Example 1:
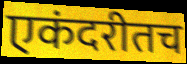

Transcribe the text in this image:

एकंदरीतच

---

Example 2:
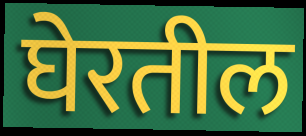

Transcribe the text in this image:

घेरतील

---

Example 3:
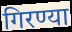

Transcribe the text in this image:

गिरण्या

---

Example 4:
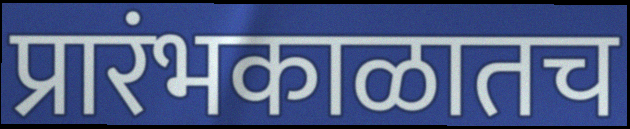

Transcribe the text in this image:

प्रारंभकाळातच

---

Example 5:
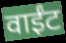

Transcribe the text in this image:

वाईंट